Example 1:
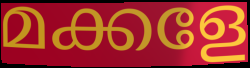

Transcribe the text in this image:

മക്കളേ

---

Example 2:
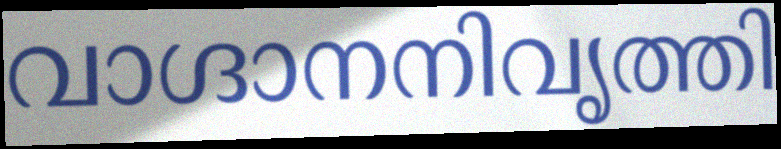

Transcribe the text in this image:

വാഗ്ദാനനിവൃത്തി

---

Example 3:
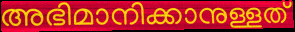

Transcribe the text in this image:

അഭിമാനിക്കാനുള്ളത്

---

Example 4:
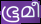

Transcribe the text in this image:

ഭൂമീ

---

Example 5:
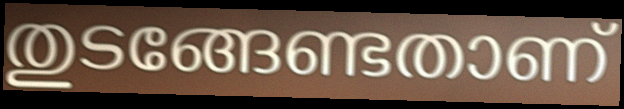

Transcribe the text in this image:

തുടങ്ങേണ്ടതാണ്